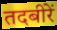
तदबीरें